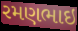
રમણભાઇ